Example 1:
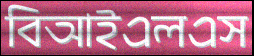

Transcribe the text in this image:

বিআইএলএস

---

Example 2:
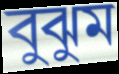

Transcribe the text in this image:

বুঝুম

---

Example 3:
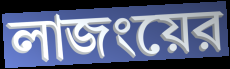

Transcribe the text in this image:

লাজংয়ের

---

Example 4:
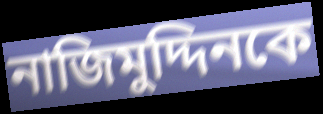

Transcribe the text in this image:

নাজিমুদ্দিনকে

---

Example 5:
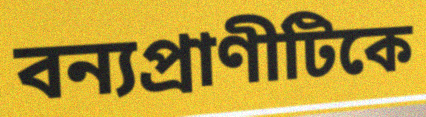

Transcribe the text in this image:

বন্যপ্রাণীটিকে